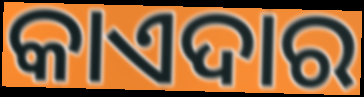
କାଏଦାର